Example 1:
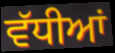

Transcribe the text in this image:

ਵੱਧੀਆਂ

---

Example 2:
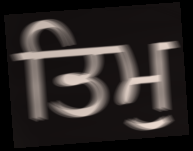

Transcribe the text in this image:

ਤਿਮੁ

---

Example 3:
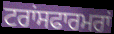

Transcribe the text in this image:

ਟਰਾਂਸਫਾਰਮਰਾਂ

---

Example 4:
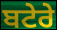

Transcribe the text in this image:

ਬਟੇਰੇ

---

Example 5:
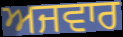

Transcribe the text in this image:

ਅਜਵਾਰ